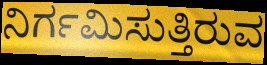
ನಿರ್ಗಮಿಸುತ್ತಿರುವ